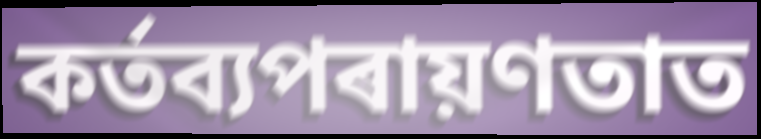
কৰ্তব্যপৰায়ণতাত